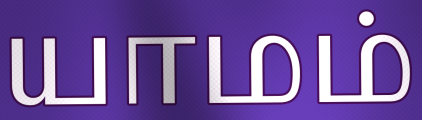
யாமம்